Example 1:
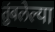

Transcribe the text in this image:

तुंबलेल्या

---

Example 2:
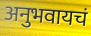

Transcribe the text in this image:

अनुभवायचं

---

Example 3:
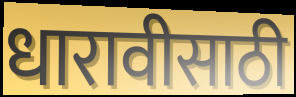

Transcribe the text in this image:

धारावीसाठी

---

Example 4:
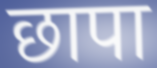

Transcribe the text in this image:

छापा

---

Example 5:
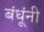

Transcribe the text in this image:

बंधूंनी